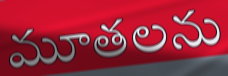
మూతలను